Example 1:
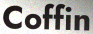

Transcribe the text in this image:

Coffin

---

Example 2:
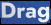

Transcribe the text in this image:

Drag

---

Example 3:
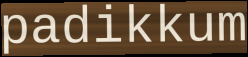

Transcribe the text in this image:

padikkum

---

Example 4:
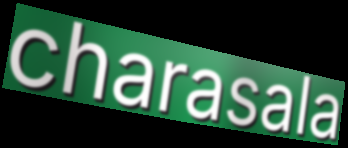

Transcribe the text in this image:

charasala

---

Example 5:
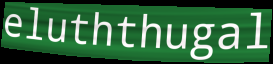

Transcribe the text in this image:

eluththugal